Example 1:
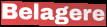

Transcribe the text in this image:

Belagere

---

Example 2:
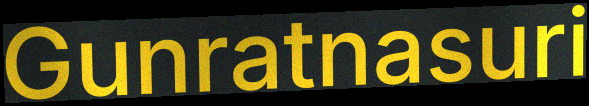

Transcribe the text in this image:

Gunratnasuri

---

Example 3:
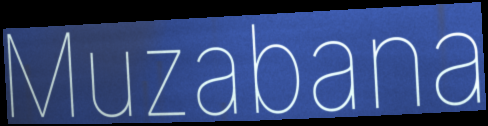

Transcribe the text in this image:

Muzabana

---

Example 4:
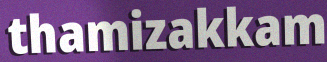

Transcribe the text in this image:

thamizakkam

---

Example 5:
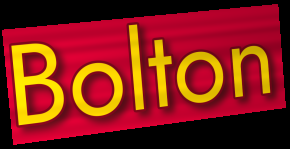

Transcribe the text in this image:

Bolton